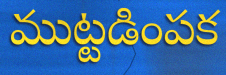
ముట్టడింపక